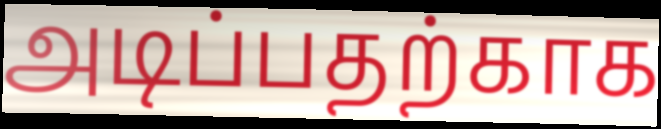
அடிப்பதற்காக